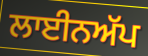
ਲਾਈਨਅੱਪ